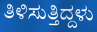
ತಿಳಿಸುತ್ತಿದ್ದಳು